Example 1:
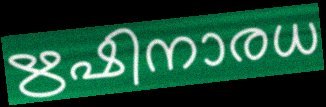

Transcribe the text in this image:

ഋഷിനാരധ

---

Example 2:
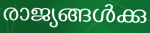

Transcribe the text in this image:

രാജ്യങ്ങൾക്കു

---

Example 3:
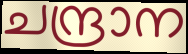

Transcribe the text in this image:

ചന്ദ്രാന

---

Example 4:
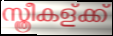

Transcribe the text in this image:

സ്ത്രീകള്ക്ക്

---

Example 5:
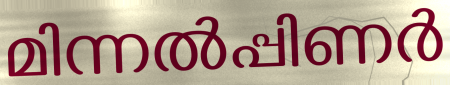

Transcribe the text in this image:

മിന്നൽപ്പിണർ